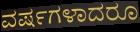
ವರ್ಷಗಳಾದರೂ